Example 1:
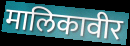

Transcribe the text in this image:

मालिकावीर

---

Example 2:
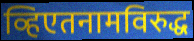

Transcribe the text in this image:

व्हिएतनामविरुद्ध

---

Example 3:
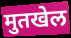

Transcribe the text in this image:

मुतखेल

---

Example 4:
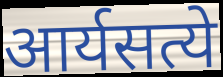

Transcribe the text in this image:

आर्यसत्ये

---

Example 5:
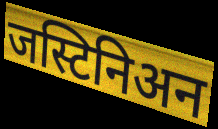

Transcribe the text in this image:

जस्टिनिअन